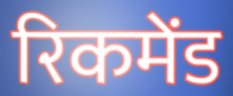
रिकमेंड